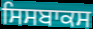
ਸਿਸਬਾਕਸ